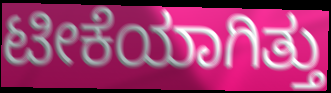
ಟೀಕೆಯಾಗಿತ್ತು